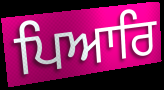
ਪਿਆਰਿ